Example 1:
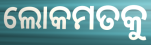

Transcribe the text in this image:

ଲୋକମତକୁ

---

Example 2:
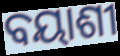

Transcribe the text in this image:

ବୟାଶୀ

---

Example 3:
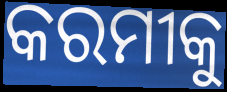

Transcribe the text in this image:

କରମୀକୁ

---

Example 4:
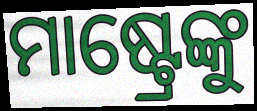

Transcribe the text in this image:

ମାଷ୍ଟ୍ରେଙ୍କୁ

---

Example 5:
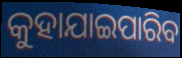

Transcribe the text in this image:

କୁହାଯାଇପାରିବ